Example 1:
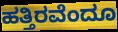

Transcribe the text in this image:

ಹತ್ತಿರವೆಂದೂ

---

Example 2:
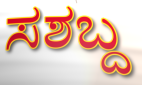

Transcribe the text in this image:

ಸಶಬ್ದ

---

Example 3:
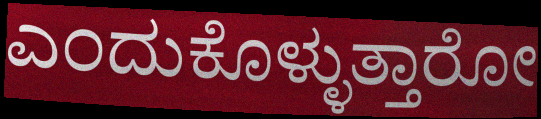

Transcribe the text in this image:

ಎಂದುಕೊಳ್ಳುತ್ತಾರೋ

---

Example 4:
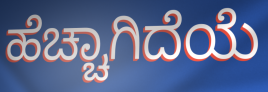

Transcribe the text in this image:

ಹೆಚ್ಚಾಗಿದೆಯೆ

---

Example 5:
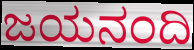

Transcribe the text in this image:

ಜಯನಂದಿ